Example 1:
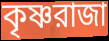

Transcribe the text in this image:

কৃষ্ণরাজা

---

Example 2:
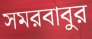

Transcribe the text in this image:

সমরবাবুর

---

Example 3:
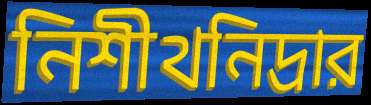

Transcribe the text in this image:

নিশীথনিদ্রার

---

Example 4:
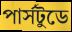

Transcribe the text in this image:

পার্সটুডে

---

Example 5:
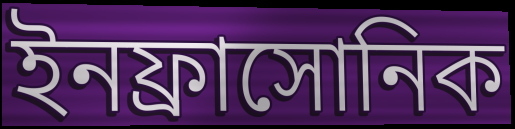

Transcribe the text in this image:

ইনফ্রাসোনিক